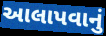
આલાપવાનું